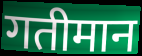
गतीमान